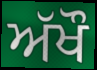
ਅੱਖੌ